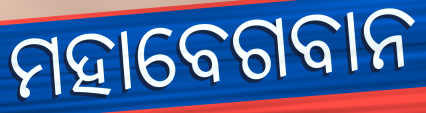
ମହାବେଗବାନ